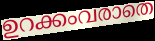
ഉറക്കംവരാതെ